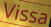
Vissa